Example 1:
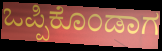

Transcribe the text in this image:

ಒಪ್ಪಿಕೊಂಡಾಗ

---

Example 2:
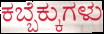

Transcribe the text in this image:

ಕಬ್ಬೆಕ್ಕುಗಳು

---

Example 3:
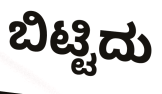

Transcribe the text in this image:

ಬಿಟ್ಟಿದು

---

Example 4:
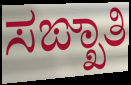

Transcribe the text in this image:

ಸಙ್ಖಾತಿ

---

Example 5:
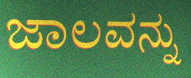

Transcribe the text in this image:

ಜಾಲವನ್ನು